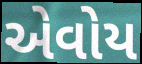
એવોય